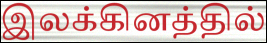
இலக்கினத்தில்